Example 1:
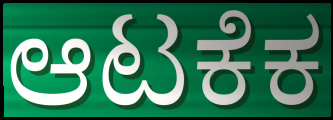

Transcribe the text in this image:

ಆಟಕೆಕ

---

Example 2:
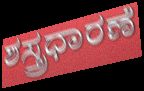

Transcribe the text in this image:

ಶಸ್ತ್ರಧಾರಣೆ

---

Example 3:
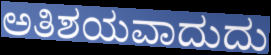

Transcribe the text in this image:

ಅತಿಶಯವಾದುದು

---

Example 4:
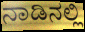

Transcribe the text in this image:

ನಾಡಿನಲ್ಲಿ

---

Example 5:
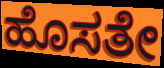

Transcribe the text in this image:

ಹೊಸತೇ